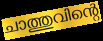
ചാത്തുവിന്റെ